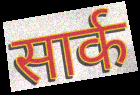
सार्क